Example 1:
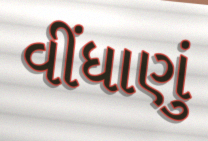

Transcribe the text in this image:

વીંધાણું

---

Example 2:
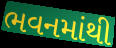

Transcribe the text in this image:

ભવનમાંથી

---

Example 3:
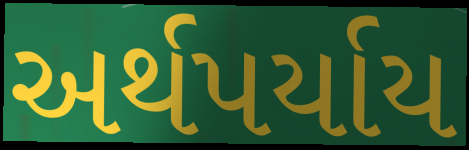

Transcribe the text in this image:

અર્થપર્યાય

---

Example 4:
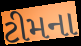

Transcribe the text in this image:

ટીમના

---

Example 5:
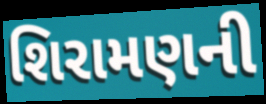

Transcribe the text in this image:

શિરામણની